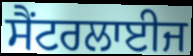
ਸੈਂਟਰਲਾਈਜ